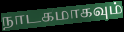
நாடகமாகவும்